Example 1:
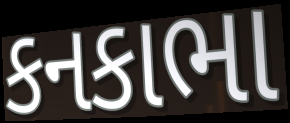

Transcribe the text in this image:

કનકાભા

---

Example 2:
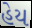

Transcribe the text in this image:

હેય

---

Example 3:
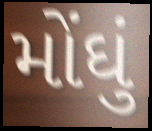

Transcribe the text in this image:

મોંઘું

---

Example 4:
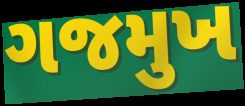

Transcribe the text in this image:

ગજમુખ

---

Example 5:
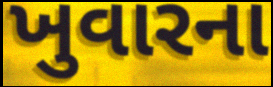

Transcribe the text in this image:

ખુવારના